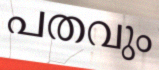
പതവും